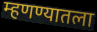
म्हणण्यातला